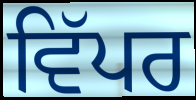
ਵਿੱਪਰ